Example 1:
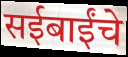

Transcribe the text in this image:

सईबाईंचे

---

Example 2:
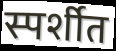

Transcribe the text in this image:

स्पर्शीत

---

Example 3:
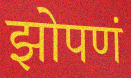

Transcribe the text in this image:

झोपणं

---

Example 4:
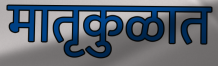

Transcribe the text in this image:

मातृकुळात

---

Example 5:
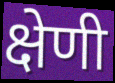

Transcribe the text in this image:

क्षेणी